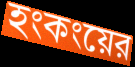
হংকংয়ের